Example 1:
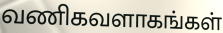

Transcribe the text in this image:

வணிகவளாகங்கள்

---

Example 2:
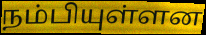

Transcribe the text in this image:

நம்பியுள்ளன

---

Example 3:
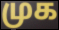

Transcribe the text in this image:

முக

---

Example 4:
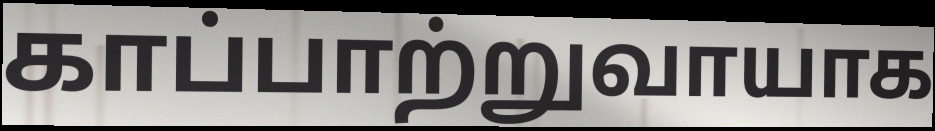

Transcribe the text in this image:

காப்பாற்றுவாயாக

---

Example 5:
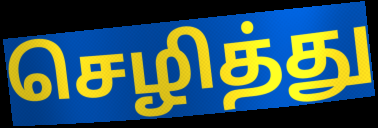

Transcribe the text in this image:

செழித்து